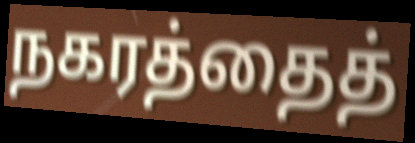
நகரத்தைத்